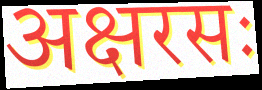
अक्षरसः